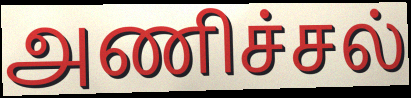
அணிச்சல்